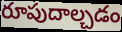
రూపుదాల్చడం